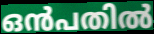
ഒൻപതിൽ